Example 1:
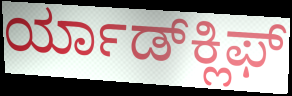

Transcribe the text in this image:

ರ್ಯಾಡ್‍ಕ್ಲಿಫ್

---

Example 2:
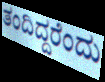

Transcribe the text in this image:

ತಂದಿದ್ದರೆಂದು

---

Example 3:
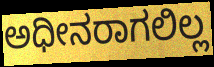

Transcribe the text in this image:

ಅಧೀನರಾಗಲಿಲ್ಲ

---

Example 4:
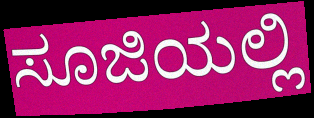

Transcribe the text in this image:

ಸೂಜಿಯಲ್ಲಿ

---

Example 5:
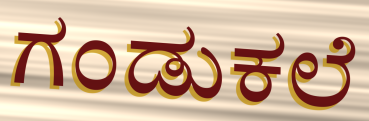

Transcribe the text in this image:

ಗಂಡುಕಲೆ